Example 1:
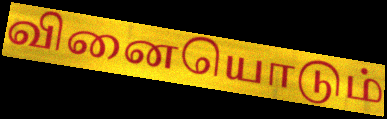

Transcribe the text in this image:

வினையொடும்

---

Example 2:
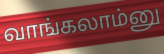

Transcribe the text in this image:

வாங்கலாம்னு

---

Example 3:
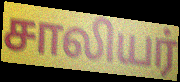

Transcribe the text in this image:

சாலியர்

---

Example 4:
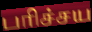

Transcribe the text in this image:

பரிச்சய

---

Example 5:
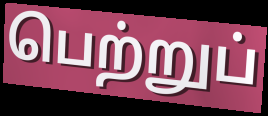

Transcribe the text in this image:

பெற்றுப்